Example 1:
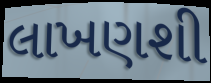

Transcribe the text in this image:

લાખણશી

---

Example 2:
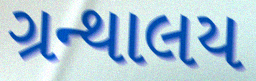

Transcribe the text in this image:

ગ્રન્થાલય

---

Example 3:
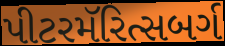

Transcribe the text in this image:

પીટરમૅરિત્સબર્ગ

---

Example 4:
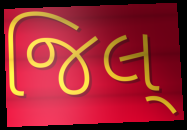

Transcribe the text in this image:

જિલ્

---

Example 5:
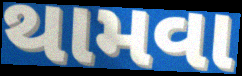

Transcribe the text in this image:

થામવા